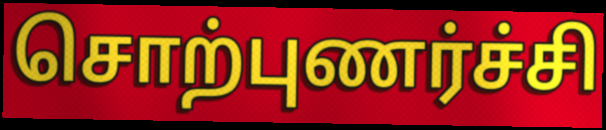
சொற்புணர்ச்சி